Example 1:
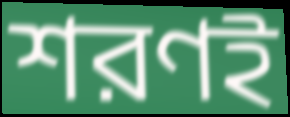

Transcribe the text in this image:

শরণই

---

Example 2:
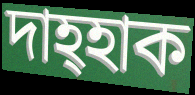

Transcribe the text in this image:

দাহ্হাক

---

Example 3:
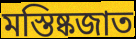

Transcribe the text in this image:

মস্তিষ্কজাত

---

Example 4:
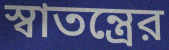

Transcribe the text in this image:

স্বাতন্ত্রের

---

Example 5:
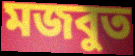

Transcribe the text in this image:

মজবুত